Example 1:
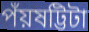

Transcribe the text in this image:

পঁয়ষট্টিটা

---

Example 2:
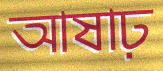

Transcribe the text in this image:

আষাঢ়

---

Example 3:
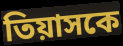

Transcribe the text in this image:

তিয়াসকে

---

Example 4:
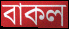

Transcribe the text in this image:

বাকল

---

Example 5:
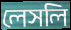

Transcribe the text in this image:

লেসলি